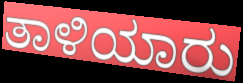
ತಾಳಿಯಾರು